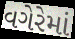
વગેરેમાં